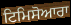
ਟਿਮਿਸੋਆਰਾ